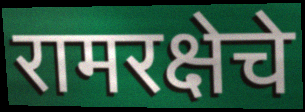
रामरक्षेचे